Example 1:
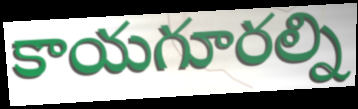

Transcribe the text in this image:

కాయగూరల్ని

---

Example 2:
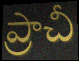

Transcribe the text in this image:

ప్రాచీ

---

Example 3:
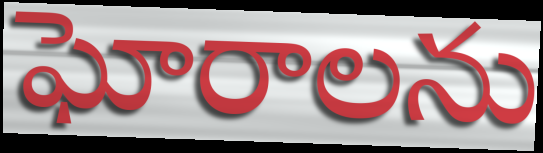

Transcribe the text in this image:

ఘోరాలను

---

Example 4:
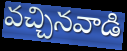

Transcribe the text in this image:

వచ్చినవాడి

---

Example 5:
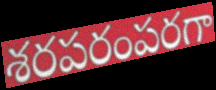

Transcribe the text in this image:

శరపరంపరగా